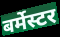
बर्मेस्टर